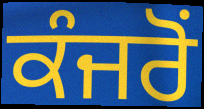
ਕੰਜਰੋਂ